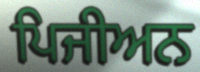
ਪਿਜੀਅਨ